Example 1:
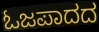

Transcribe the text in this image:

ಓಜಪಾದದ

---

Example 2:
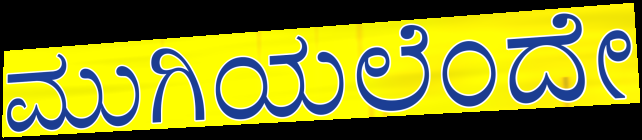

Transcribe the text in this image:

ಮುಗಿಯಲೆಂದೇ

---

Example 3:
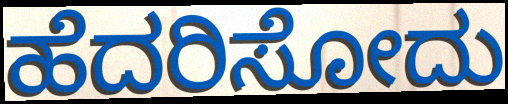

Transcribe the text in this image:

ಹೆದರಿಸೋದು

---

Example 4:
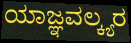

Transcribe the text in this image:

ಯಾಜ್ಞವಲ್ಕ್ಯರ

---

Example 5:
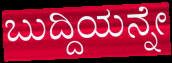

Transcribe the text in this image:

ಬುದ್ದಿಯನ್ನೇ